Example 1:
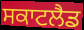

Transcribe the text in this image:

ਸਕਾਟਲੈਡ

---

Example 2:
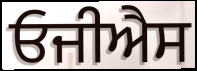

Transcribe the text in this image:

ਓਜੀਐਸ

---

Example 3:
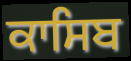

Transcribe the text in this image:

ਕਾਸਿਬ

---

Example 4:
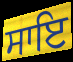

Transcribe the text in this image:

ਸਾਇ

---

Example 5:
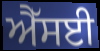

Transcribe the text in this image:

ਐੱਸਈ